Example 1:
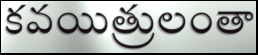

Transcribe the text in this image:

కవయిత్రులంతా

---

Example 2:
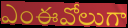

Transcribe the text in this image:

ఎంఈవోలుగా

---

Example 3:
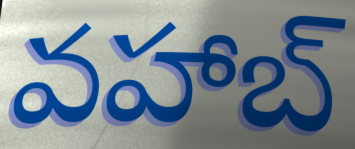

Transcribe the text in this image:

వహాబ్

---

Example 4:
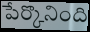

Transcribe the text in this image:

పేర్కొనింది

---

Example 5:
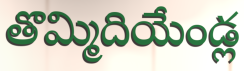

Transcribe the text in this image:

తొమ్మిదియేండ్ల